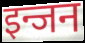
इन्जन